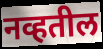
नव्हतील